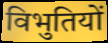
विभुतियों